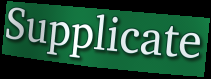
Supplicate